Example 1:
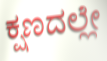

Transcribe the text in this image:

ಕ್ಷಣದಲ್ಲೇ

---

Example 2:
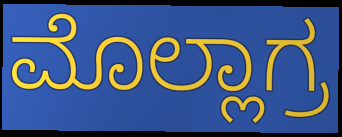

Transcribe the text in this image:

ಮೊಲ್ಲಾಗ್ರ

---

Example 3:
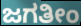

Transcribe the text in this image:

ಜಗತೀಂ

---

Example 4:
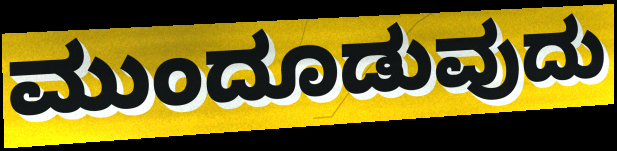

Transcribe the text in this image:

ಮುಂದೂಡುವುದು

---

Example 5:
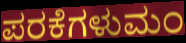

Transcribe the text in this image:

ಪರಕೆಗಳುಮಂ